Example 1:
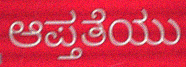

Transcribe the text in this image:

ಆಪ್ತತೆಯು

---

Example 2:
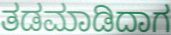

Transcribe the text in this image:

ತಡಮಾಡಿದಾಗ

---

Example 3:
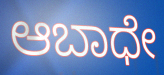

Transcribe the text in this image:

ಆಬಾಧೇ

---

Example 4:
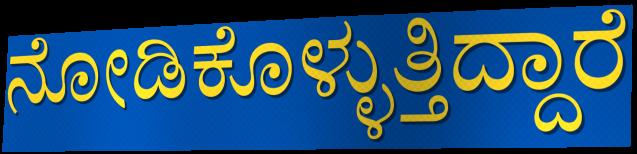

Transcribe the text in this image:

ನೋಡಿಕೊಳ್ಳುತ್ತಿದ್ದಾರೆ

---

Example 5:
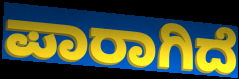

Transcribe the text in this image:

ಪಾರಾಗಿದೆ